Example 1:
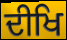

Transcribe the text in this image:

ਦੀਖਿ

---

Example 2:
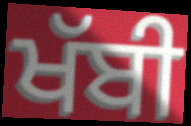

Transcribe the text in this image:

ਖੱਬੀ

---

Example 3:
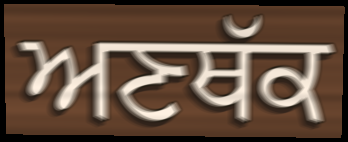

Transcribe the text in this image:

ਅਣਥੱਕ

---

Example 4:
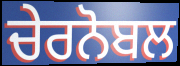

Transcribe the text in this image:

ਚੇਰਨੋਬਲ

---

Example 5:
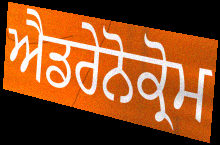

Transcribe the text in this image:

ਐਡਰੇਨੋਕ੍ਰੋਮ